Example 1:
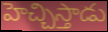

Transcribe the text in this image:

హెచ్చిస్తాడు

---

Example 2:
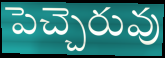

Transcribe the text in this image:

పెచ్చెరువు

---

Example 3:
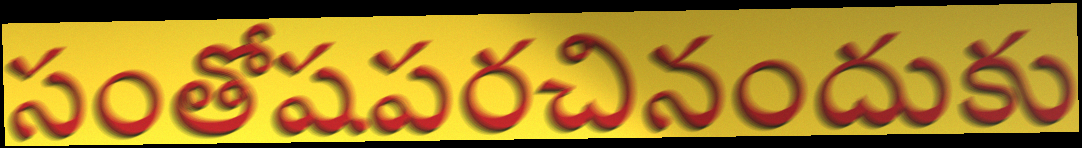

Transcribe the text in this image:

సంతోషపరచినందుకు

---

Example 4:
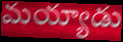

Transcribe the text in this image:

మయ్యాడు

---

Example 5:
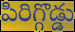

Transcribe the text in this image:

పిరిగ్గొడ్డు